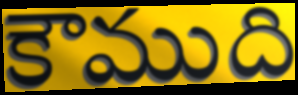
కౌముది